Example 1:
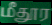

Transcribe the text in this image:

மீதூர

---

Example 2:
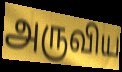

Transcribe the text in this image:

அருவிய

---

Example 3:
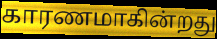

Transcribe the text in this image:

காரணமாகின்றது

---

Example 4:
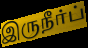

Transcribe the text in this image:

இருநீர்ப்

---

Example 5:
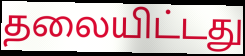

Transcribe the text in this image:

தலையிட்டது